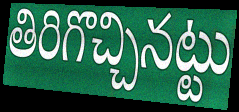
తిరిగొచ్చినట్టు